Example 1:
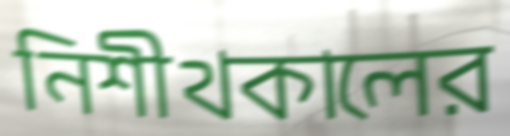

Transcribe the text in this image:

নিশীথকালের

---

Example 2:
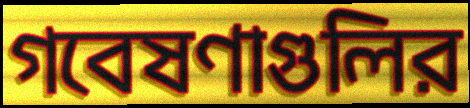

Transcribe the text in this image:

গবেষণাগুলির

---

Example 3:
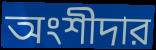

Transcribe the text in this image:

অংশীদার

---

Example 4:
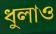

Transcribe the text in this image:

ধুলাও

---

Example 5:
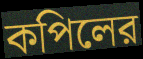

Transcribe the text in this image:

কপিলের